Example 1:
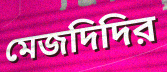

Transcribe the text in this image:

মেজদিদির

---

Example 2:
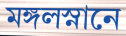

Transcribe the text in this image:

মঙ্গলস্নানে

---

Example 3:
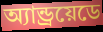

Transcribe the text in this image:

অ্যান্ড্রয়েডে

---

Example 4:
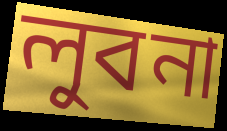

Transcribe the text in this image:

লুবনা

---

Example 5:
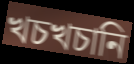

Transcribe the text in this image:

খচখচানি